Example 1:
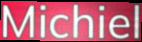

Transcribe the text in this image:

Michiel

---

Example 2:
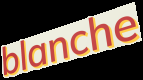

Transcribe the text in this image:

blanche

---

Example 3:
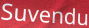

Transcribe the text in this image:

Suvendu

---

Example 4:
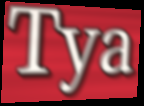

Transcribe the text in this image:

Tya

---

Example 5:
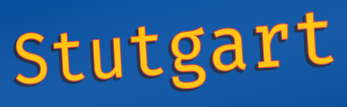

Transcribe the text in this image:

Stutgart